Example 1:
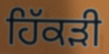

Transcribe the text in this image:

ਹਿੱਕੜੀ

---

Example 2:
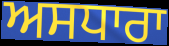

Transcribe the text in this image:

ਅਸਧਾਰਾ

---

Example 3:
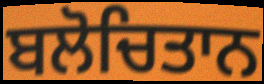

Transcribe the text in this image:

ਬਲੋਚਿਤਾਨ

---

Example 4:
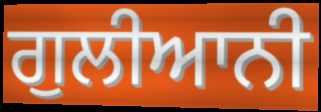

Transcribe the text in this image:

ਗੁਲੀਆਨੀ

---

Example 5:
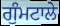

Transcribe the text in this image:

ਗੁੰਮਟਾਲੇ